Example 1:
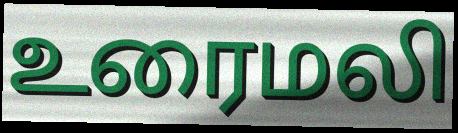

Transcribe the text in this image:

உரைமலி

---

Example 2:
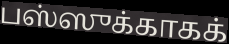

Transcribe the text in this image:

பஸ்ஸுக்காகக்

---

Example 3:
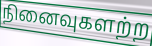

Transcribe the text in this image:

நினைவுகளற்ற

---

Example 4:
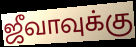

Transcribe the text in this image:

ஜீவாவுக்கு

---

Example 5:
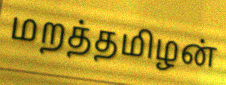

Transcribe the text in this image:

மறத்தமிழன்